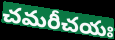
చమరీచయః